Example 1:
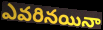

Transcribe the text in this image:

ఎవరినయినా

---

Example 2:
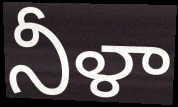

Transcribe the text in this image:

నీళా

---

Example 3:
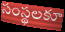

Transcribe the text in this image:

సంస్థలకూ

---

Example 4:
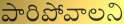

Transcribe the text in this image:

పారిపోవాలని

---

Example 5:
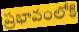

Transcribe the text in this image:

ప్రభావంలోకి